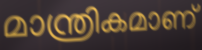
മാന്ത്രികമാണ്